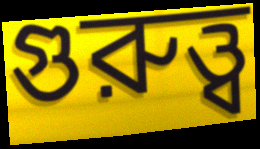
গুরুত্ত্ব